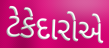
ટેકેદારોએ